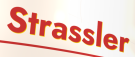
Strassler